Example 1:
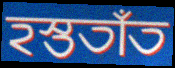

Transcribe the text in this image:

হস্ততাঁত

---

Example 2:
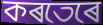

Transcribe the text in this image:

কৰতেৰে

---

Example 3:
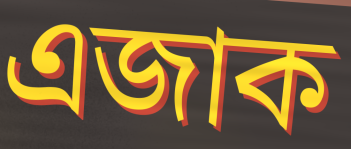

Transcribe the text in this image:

এজাক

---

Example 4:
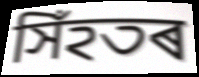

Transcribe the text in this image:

সিঁহতৰ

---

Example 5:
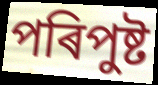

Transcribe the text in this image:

পৰিপুষ্ট